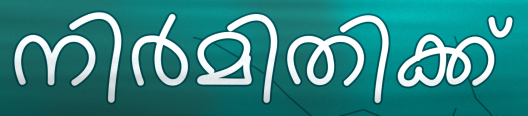
നിർമിതിക്ക്